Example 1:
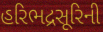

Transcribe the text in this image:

હરિભદ્રસૂરિની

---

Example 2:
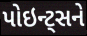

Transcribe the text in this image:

પોઇન્ટ્સને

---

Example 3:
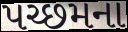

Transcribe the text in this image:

પચ્છમના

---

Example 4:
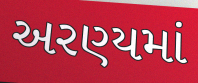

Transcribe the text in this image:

અરણ્યમાં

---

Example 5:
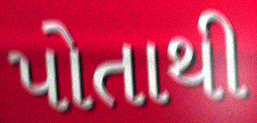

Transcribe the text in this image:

પોતાથી